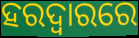
ହରଦ୍ୱାରରେ